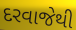
દરવાજેથી